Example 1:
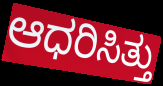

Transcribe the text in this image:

ಆಧರಿಸಿತ್ತು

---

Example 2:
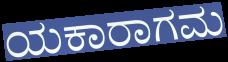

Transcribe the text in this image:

ಯಕಾರಾಗಮ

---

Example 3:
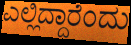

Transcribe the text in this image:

ಎಲ್ಲಿದ್ದಾರೆಂದು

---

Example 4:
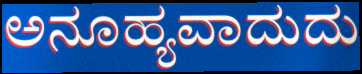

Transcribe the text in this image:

ಅನೂಹ್ಯವಾದುದು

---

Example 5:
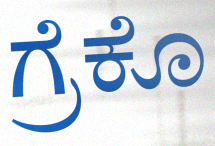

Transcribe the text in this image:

ಗ್ರೆಕೊ